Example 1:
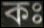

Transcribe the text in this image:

কঃ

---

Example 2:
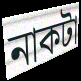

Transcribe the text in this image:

নাকটা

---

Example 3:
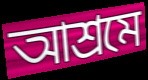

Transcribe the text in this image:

আশ্রমে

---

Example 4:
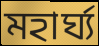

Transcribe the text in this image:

মহার্ঘ্য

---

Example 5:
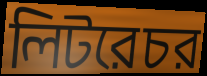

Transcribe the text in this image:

লিটরেচর